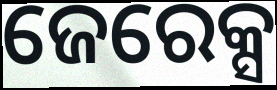
ଜେରେକ୍ସ